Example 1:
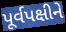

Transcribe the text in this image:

પૂર્વપક્ષીને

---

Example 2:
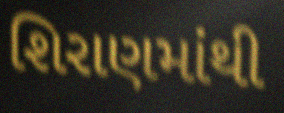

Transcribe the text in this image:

શિરાણમાંથી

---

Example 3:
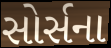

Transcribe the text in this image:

સોર્સના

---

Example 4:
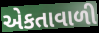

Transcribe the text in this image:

એકતાવાળી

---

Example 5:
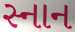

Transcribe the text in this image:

સ્નાન